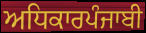
ਅਧਿਕਾਰਪੰਜਾਬੀ